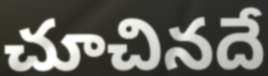
చూచినదే